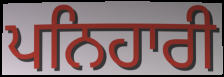
ਪਨਿਹਾਰੀ